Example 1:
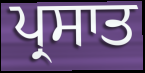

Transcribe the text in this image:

ਪ੍ਰਸਾਤ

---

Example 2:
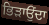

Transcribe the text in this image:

ਭਿੜਾਉਂਦਾ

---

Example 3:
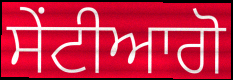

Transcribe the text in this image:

ਸੇਂਟੀਆਗੋ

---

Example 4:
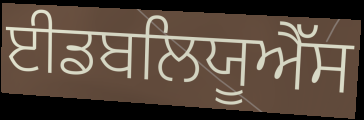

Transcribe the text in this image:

ਈਡਬਲਿਯੂਐੱਸ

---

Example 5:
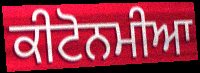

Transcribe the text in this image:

ਕੀਟੋਨਮੀਆ